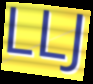
LLJ